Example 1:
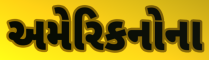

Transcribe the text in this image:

અમેરિકનોના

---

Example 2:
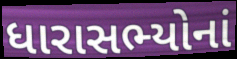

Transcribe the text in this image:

ધારાસભ્યોનાં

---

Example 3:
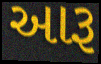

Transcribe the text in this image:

આરૂ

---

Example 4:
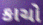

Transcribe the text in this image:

કાચો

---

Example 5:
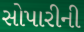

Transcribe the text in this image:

સોપારીની